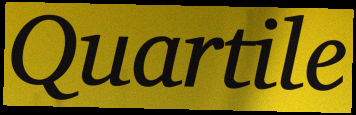
Quartile